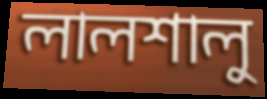
লালশালু